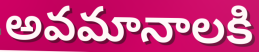
అవమానాలకి